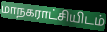
மாநகராட்சியிடம்